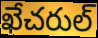
ఖేచరుల్